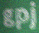
gpj